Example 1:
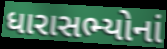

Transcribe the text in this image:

ધારાસભ્યોનાં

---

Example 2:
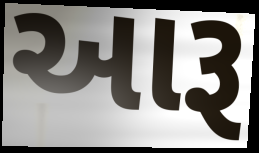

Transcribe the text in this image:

આરૂ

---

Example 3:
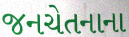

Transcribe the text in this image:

જનચેતનાના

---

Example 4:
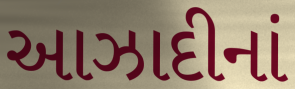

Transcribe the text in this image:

આઝાદીનાં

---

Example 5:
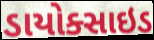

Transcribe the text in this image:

ડાયોક્સાઇડ